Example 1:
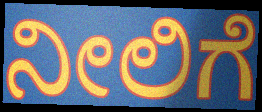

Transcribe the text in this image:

ನೀಲಿಗೆ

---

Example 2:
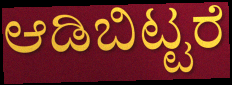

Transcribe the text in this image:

ಆಡಿಬಿಟ್ಟರೆ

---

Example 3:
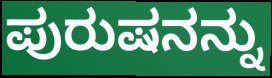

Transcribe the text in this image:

ಪುರುಷನನ್ನು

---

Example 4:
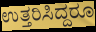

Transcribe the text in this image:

ಉತ್ತರಿಸಿದ್ದರೂ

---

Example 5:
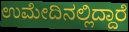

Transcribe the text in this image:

ಉಮೇದಿನಲ್ಲಿದ್ದಾರೆ